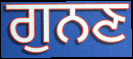
ਗੁਨਣ